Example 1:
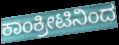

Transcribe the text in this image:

ಕಾಂಕ್ರೀಟಿನಿಂದ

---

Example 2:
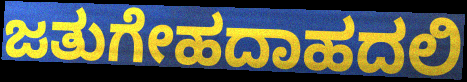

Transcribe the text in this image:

ಜತುಗೇಹದಾಹದಲಿ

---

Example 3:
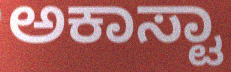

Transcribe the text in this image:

ಅಕಾಸ್ಟಾ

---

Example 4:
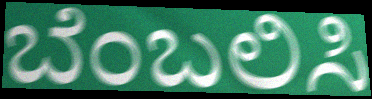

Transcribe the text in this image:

ಬೆಂಬಲಿಸಿ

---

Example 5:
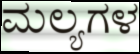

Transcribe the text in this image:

ಮಲ್ಯಗಳ